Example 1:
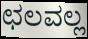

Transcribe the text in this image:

ಛಲವಲ್ಲ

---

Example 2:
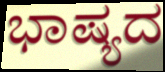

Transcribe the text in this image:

ಭಾಷ್ಯದ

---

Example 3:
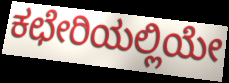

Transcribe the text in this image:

ಕಛೇರಿಯಲ್ಲಿಯೇ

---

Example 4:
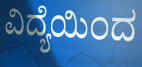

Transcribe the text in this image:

ವಿದ್ಯೆಯಿಂದ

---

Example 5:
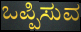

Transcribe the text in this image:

ಒಪ್ಪಿಸುವ